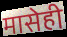
मासेही